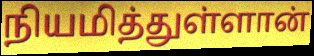
நியமித்துள்ளான்